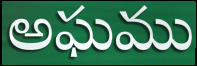
అఘము